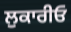
ਲੁਕਾਰੀਓ